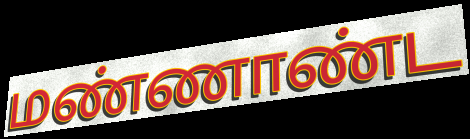
மண்ணாண்ட